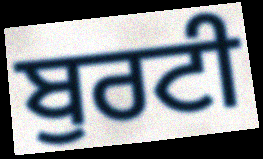
ਬੁਰਟੀ